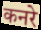
कनरे